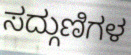
ಸದ್ಗುಣಿಗಳ